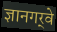
ज्ञानगर्वे